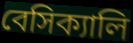
বেসিক্যালি